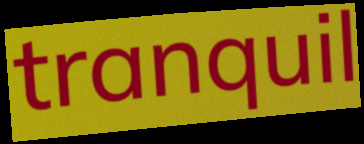
tranquil